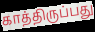
காத்திருப்பது